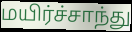
மயிர்ச்சாந்து